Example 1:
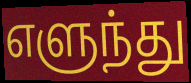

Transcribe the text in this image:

எளுந்து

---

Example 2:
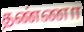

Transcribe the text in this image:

தண்ணா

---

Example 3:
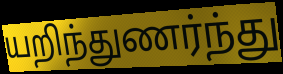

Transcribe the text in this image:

யறிந்துணர்ந்து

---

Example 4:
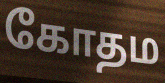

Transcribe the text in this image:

கோதம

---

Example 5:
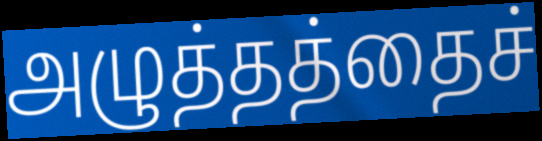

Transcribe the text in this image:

அழுத்தத்தைச்